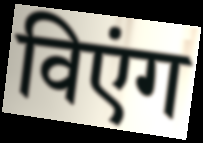
विएंग